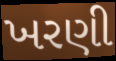
ખરણી